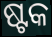
ଷ୍ଟକ